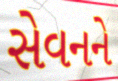
સેવનને